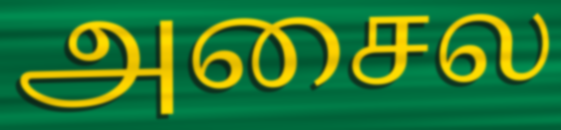
அசைல